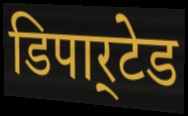
डिपार्टेड